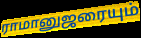
ராமானுஜரையும்